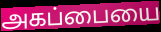
அகப்பையை